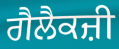
ਗੈਲੈਕਜ਼ੀ